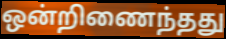
ஒன்றிணைந்தது